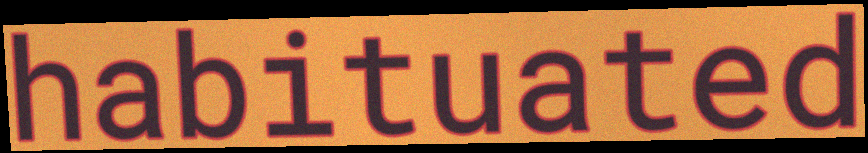
habituated